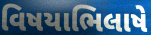
વિષયાભિલાષે